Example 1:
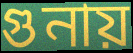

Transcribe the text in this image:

গুনায়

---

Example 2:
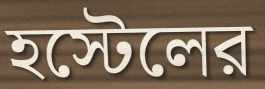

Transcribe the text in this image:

হস্টেলের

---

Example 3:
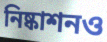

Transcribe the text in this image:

নিষ্কাশনও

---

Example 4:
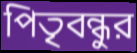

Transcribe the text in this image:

পিতৃবন্ধুর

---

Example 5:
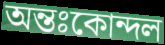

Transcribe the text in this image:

অন্তঃকোন্দল